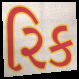
રિક